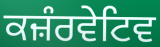
ਕਜ਼ੰਰਵੇਟਿਵ